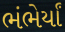
ભંભેર્યાં